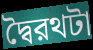
দ্বৈরথটা